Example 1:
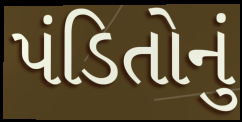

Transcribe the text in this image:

પંડિતોનું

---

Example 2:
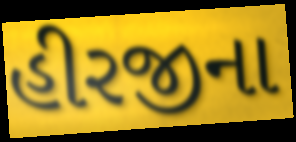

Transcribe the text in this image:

હીરજીના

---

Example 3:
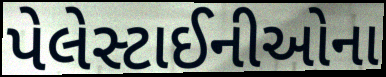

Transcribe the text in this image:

પેલેસ્ટાઈનીઓના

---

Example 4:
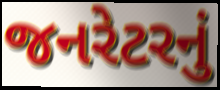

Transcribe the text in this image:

જનરેટરનું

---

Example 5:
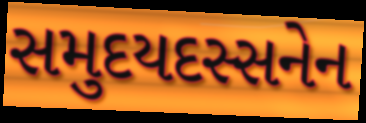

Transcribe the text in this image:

સમુદયદસ્સનેન